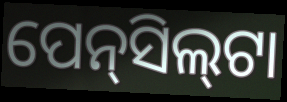
ପେନ୍‌ସିଲ୍‍ଟା